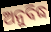
ଅନୁବିଦ୍ଧ